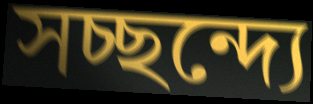
সচ্ছন্দ্যে